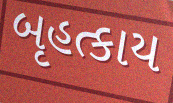
બૃહત્કાય